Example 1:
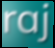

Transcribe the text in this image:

raj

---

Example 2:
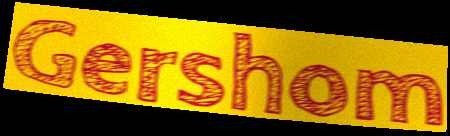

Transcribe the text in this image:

Gershom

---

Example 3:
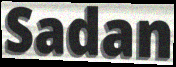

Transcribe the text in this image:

Sadan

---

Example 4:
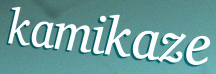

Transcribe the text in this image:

kamikaze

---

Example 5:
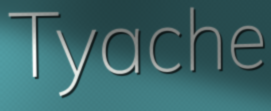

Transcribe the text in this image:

Tyache